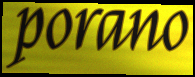
porano